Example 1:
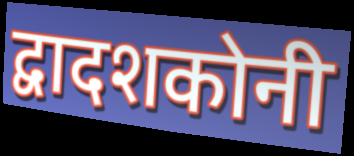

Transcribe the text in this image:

द्वादशकोनी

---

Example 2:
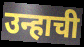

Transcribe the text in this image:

उन्हाची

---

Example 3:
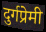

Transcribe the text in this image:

दुर्गप्रेमी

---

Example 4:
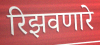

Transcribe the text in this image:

रिझवणारे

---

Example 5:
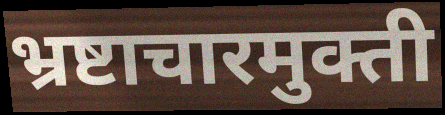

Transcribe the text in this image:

भ्रष्टाचारमुक्ती